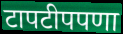
टापटीपपणा